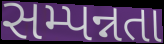
સમ્પન્નતા